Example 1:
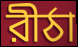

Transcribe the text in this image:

রীঠা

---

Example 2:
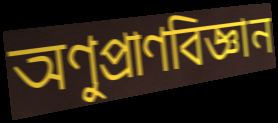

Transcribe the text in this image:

অণুপ্রাণবিজ্ঞান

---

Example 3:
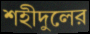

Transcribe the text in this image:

শহীদুলের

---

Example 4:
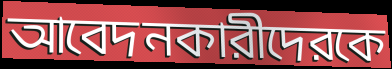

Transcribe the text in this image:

আবেদনকারীদেরকে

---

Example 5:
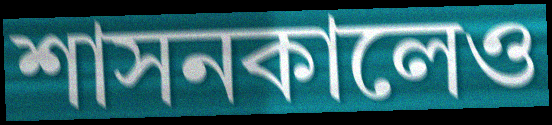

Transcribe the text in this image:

শাসনকালেও